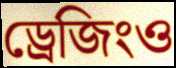
ড্রেজিংও